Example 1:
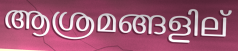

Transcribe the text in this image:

ആശ്രമങ്ങളില്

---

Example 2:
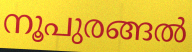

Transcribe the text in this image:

നൂപുരങ്ങൽ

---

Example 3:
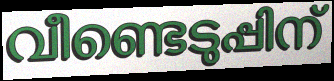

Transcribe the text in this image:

വീണ്ടെടുപ്പിന്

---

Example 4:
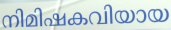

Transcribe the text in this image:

നിമിഷകവിയായ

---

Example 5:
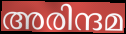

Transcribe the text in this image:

അരിന്ദമ